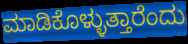
ಮಾಡಿಕೊಳ್ಳುತ್ತಾರೆಂದು